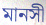
মানসী